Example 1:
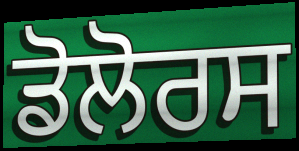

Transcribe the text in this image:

ਡੋਲੋਰਸ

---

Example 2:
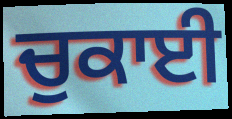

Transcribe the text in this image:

ਚੁਕਾਈ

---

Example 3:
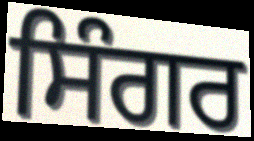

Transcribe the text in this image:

ਸਿੰਗਰ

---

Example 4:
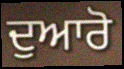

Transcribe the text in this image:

ਦੁਆਰੋ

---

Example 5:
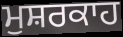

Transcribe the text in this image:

ਮੁਸ਼ਰਕਾਹ